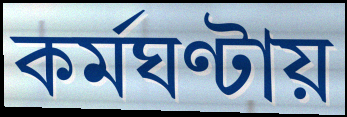
কর্মঘণ্টায়